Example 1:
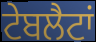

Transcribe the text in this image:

ਟੇਬਲੈਟਾਂ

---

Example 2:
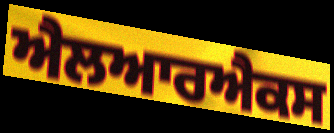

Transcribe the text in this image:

ਐਲਆਰਐਕਸ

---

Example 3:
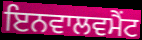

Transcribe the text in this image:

ਇਨਵਾਲਵਮੈਂਟ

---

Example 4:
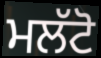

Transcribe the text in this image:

ਮਲੱਟੋ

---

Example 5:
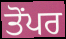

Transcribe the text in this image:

ਤੋਂਪਰ